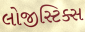
લોજીસ્ટિક્સ